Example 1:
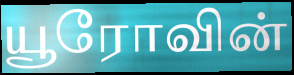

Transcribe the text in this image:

யூரோவின்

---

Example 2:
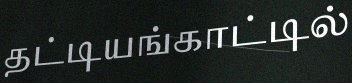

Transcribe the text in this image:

தட்டியங்காட்டில்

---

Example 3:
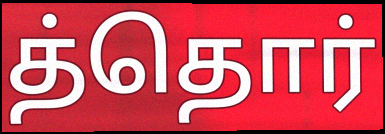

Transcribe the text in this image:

த்தொர்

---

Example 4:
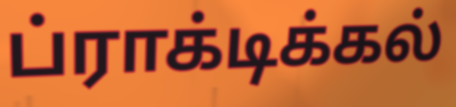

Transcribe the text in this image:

ப்ராக்டிக்கல்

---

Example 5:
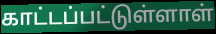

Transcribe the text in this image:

காட்டப்பட்டுள்ளாள்